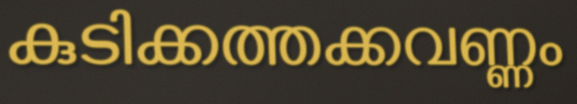
കുടിക്കത്തക്കവണ്ണം